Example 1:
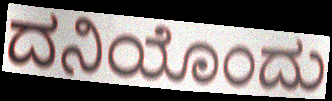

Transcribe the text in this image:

ದನಿಯೊಂದು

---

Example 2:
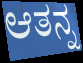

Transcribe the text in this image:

ಆತನ್ನ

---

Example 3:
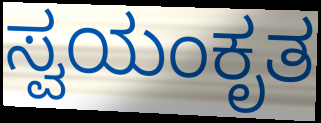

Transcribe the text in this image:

ಸ್ವಯಂಕೃತ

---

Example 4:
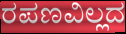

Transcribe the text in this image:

ರಪಣವಿಲ್ಲದ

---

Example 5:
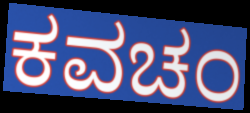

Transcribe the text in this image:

ಕವಚಂ